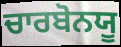
ਚਾਰਬੋਨਯੂ